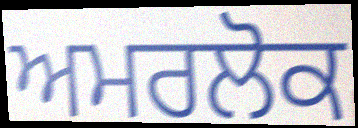
ਅਮਰਲੋਕ